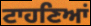
ਟਾਹਣਿਆਂ